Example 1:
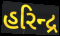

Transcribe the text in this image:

હરિન્દ્ર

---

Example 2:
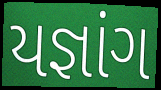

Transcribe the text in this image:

યજ્ઞાંગ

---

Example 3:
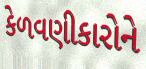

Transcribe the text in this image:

કેળવણીકારોને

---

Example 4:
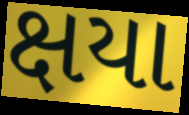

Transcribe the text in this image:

ક્ષયા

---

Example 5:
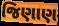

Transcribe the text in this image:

જિણાણ